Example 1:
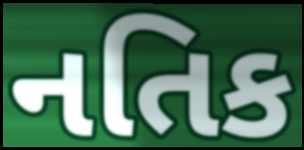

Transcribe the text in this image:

નતિક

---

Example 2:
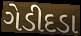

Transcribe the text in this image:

ગેડીદડા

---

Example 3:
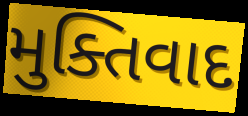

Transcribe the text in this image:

મુક્તિવાદ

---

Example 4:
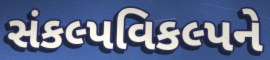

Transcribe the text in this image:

સંકલ્પવિકલ્પને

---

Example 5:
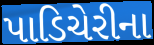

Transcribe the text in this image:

પાડિચેરીના